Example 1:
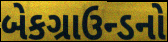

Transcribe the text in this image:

બેકગ્રાઉન્ડનો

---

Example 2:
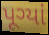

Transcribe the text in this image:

પૂગ્યાં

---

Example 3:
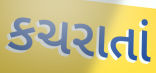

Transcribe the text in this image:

કચરાતાં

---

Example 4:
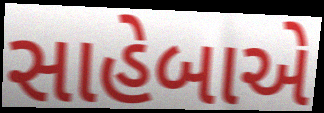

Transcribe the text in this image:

સાહેબાએ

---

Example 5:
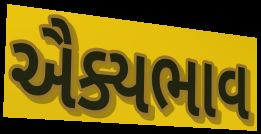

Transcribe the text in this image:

ઐક્યભાવ